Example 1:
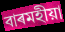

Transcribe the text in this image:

বাৰমহীয়া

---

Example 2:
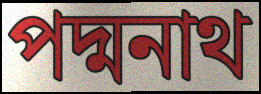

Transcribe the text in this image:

পদ্মনাথ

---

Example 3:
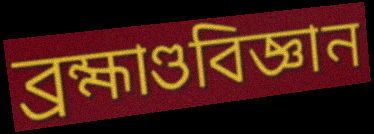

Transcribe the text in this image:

ব্ৰহ্মাণ্ডবিজ্ঞান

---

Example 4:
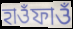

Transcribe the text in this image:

হাওঁফাওঁ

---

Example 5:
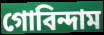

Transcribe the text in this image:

গোবিন্দাম